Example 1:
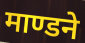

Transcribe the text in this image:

माण्डने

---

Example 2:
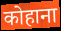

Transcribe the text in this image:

कोहाना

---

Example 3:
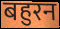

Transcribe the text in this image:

बहुरन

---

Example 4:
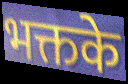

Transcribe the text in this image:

भक्तके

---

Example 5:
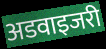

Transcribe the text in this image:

अडवाइजरी